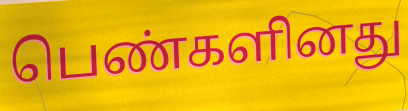
பெண்களினது